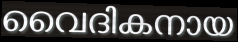
വൈദികനായ